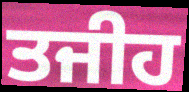
ਤਜੀਹ